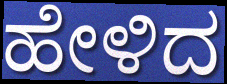
ಹೇಳಿದ